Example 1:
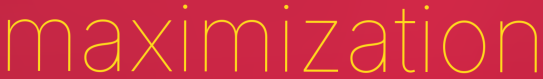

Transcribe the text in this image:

maximization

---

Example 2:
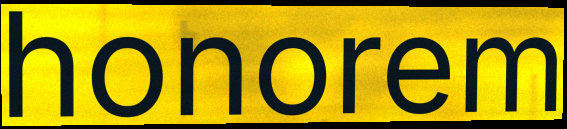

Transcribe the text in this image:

honorem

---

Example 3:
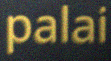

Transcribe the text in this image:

palai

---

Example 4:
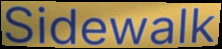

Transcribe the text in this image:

Sidewalk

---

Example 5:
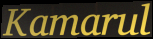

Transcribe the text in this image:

Kamarul